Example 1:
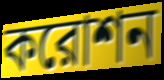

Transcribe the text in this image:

করোশন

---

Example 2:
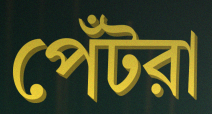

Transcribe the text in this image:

পেঁটরা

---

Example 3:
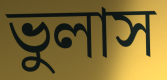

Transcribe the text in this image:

ভুলাস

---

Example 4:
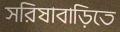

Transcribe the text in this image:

সরিষাবাড়িতে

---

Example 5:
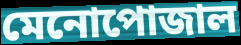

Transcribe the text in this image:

মেনোপোজাল